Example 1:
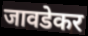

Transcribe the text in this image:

जावडेकर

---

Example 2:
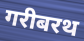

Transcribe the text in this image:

गरीबरथ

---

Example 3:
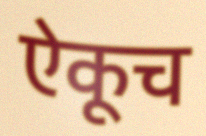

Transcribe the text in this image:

ऐकूच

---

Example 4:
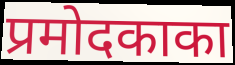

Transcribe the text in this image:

प्रमोदकाका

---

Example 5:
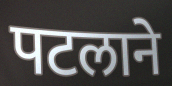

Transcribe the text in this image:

पटलाने